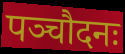
पञ्चौदनः